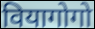
वियागोगो